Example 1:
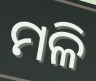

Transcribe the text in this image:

ମଳି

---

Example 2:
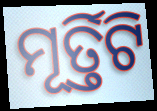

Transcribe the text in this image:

ମୂର୍ତ୍ତିଟି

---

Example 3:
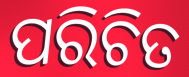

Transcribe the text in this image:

ପରିଚିତ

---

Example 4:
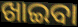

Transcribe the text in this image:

ଖାଇବା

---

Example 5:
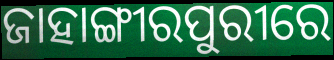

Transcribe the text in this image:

ଜାହାଙ୍ଗୀରପୁରୀରେ